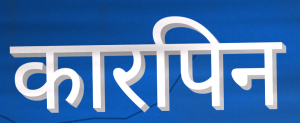
कारपिन